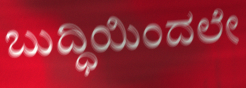
ಬುದ್ಧಿಯಿಂದಲೇ